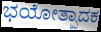
ಭಯೋತ್ಪಾದಕ